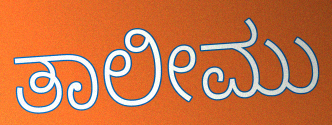
ತಾಲೀಮು